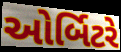
ઓર્બિટરે